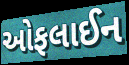
ઓફલાઈન